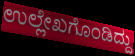
ಉಲ್ಲೇಖಗೊಂಡಿದ್ದು